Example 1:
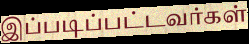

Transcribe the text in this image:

இப்படிப்பட்டவர்கள்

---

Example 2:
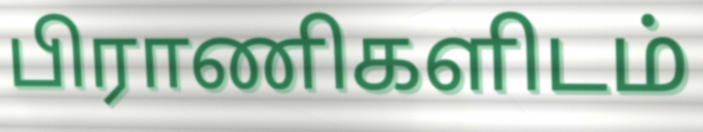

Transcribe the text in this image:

பிராணிகளிடம்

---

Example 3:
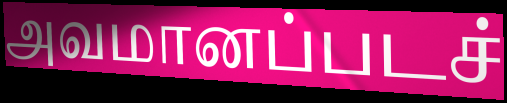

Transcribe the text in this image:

அவமானப்படச்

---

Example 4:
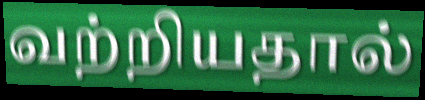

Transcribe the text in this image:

வற்றியதால்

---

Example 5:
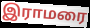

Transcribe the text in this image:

இராமரை